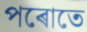
পৰোতে